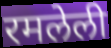
रमलेली